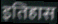
इतिहास